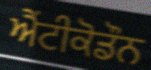
ਐਂਟੀਕੋਡੌਨ